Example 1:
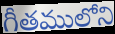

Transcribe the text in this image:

గీతములోని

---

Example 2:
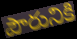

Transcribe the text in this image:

పౌరునికి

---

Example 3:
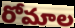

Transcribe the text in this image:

రోమాల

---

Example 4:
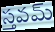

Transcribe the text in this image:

స్తవమ్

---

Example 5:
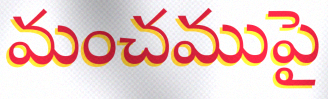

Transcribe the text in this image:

మంచముపై